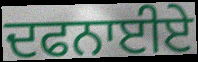
ਦਫਨਾਈਏ